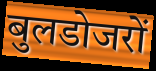
बुलडोजरों